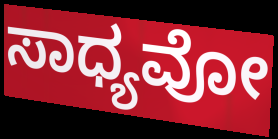
ಸಾಧ್ಯವೋ